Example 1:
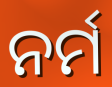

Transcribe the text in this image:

ନର୍ମ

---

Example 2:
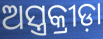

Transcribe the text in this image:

ଅସ୍ତ୍ରକ୍ରୀଡ଼ା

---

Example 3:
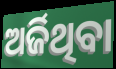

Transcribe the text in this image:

ଅର୍ଜିଥିବା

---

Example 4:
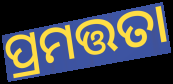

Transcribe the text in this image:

ପ୍ରମତ୍ତତା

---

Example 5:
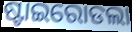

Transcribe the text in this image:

ଷ୍ଟାଇରୋଡଲା